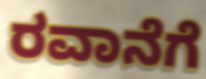
ರವಾನೆಗೆ